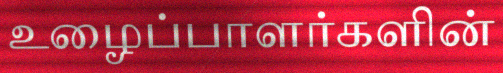
உழைப்பாளர்களின்